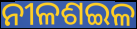
ନୀଳଶଇଳ